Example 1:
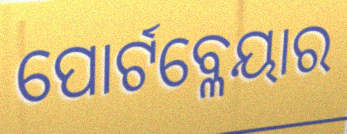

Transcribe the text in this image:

ପୋର୍ଟବ୍ଳେୟାର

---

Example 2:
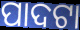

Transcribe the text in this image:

ପାଦଟା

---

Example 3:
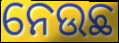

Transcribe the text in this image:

ନେଉଛ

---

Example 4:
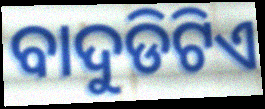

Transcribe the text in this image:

ବାଦୁଡିଟିଏ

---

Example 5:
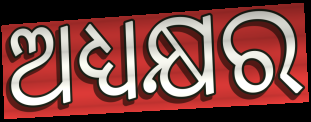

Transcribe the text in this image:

ଅଧ୍ୟକ୍ଷର